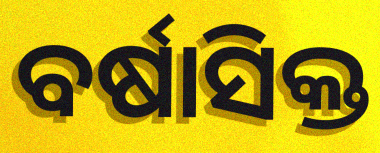
ବର୍ଷାସିକ୍ତ